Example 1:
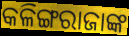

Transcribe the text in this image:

କଳିଙ୍ଗରାଜାଙ୍କ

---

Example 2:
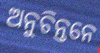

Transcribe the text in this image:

ଅନୁଚିନ୍ତନେ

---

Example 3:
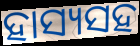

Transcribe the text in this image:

ହାସ୍ୟସହ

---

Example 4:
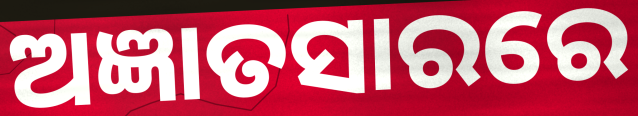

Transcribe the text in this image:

ଅଜ୍ଞାତସାରରେ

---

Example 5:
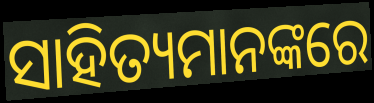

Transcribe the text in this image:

ସାହିତ୍ୟମାନଙ୍କରେ